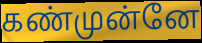
கண்முன்னே